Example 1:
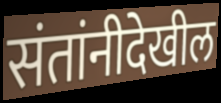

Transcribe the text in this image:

संतांनीदेखील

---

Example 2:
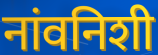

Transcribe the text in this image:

नांवनिशी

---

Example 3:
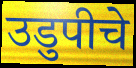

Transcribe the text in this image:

उडुपीचे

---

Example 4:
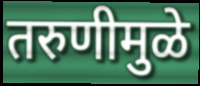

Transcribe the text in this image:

तरुणीमुळे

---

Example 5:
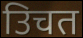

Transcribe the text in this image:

उिचत